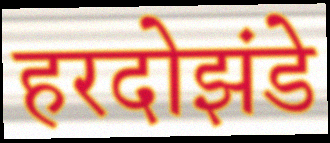
हरदोझंडे